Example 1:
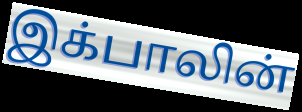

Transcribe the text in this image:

இக்பாலின்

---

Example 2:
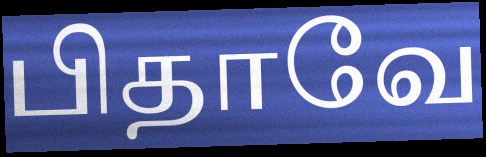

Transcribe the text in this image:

பிதாவே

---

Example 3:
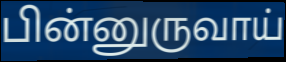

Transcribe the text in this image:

பின்னுருவாய்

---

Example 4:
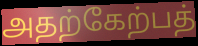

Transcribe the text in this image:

அதற்கேற்பத்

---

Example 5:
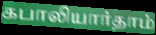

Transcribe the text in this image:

கபாலியார்தாம்